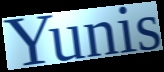
Yunis